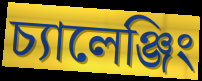
চ্যালেঞ্জিং